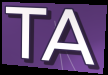
TA